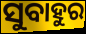
ସୁବାହୁର